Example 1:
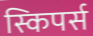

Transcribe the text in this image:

स्किपर्स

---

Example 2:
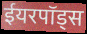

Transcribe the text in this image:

ईयरपॉड्स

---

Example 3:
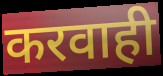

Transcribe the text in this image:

करवाही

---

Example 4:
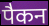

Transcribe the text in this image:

पैकन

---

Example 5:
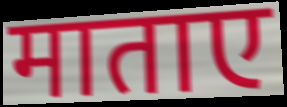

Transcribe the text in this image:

माताए